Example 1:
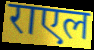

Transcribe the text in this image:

राएल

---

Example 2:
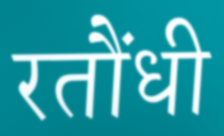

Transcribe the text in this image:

रतौंधी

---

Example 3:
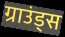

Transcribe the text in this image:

ग्राउंड्स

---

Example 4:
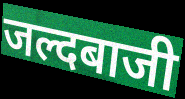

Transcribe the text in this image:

जल्दबाजी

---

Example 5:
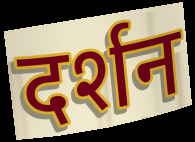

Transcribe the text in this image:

दर्शन